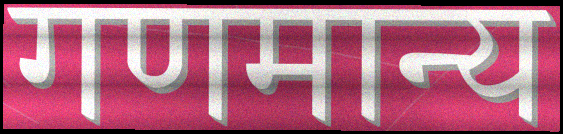
गणमान्य